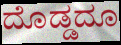
ದೊಡ್ಡದೂ